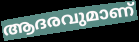
ആദരവുമാണ്